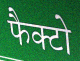
फैक्टो